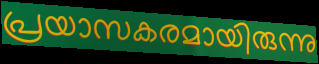
പ്രയാസകരമായിരുന്നു